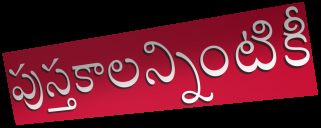
పుస్తకాలన్నింటికీ